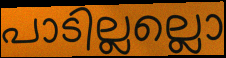
പാടില്ലല്ലൊ